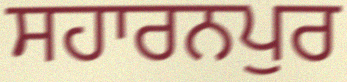
ਸਹਾਰਨਪੁਰ